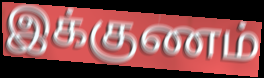
இக்குணம்